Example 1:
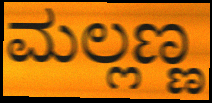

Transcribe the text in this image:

ಮಲ್ಲಣ್ಣ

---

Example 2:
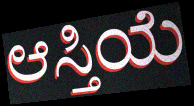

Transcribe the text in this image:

ಆಸ್ತಿಯೆ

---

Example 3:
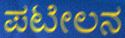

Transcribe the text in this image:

ಪಟೇಲನ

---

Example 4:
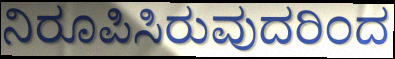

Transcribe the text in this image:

ನಿರೂಪಿಸಿರುವುದರಿಂದ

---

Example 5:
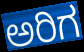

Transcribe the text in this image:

ಅರಿಗ